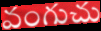
వంగుచు